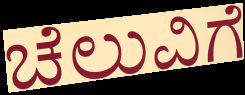
ಚೆಲುವಿಗೆ